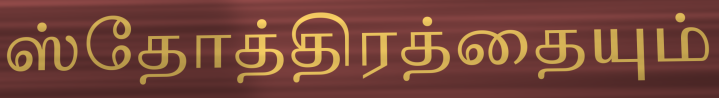
ஸ்தோத்திரத்தையும்